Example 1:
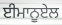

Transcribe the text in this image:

ਈਮਾਨੂਏਲ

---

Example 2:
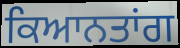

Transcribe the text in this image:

ਕਿਆਨਤਾਂਗ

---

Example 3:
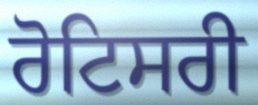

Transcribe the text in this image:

ਰੋਟਿਸਰੀ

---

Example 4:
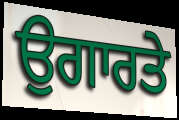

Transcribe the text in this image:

ਉਗਾਰਤੇ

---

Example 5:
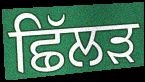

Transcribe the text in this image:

ਛਿੱਲੜ